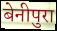
बेनीपुरा